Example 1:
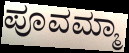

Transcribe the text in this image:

ಪೂವಮ್ಮಾ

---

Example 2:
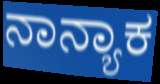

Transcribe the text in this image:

ನಾನ್ಯಾಕ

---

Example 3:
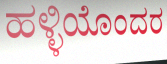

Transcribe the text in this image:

ಹಳ್ಳಿಯೊಂದರ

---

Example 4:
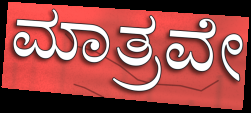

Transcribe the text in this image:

ಮಾತ್ರವೇ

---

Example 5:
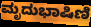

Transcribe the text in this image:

ಮೃದುಭಾಷಿಣಿ